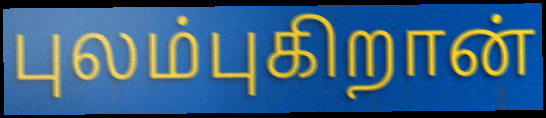
புலம்புகிறான்